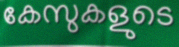
കേസുകളുടെ